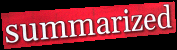
summarized